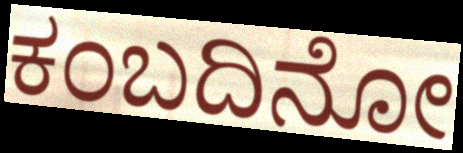
ಕಂಬದಿನೋ